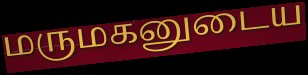
மருமகனுடைய